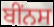
ਬੀਂਨਸ